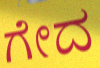
ಗೇದ